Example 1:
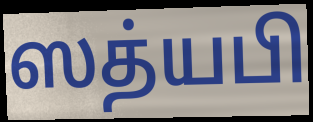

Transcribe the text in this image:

ஸத்யபி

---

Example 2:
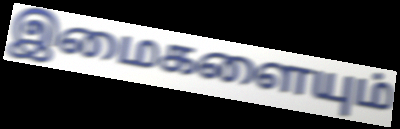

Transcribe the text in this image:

இமைகளையும்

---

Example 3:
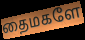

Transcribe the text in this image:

தைமகளே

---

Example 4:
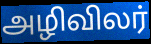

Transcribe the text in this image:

அழிவிலர்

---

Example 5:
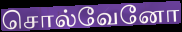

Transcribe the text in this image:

சொல்வேனோ